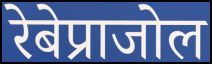
रेबेप्राजोल